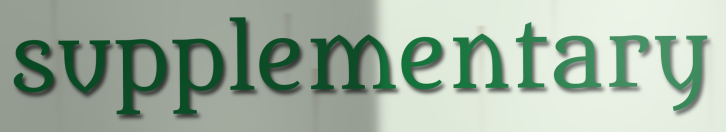
supplementary